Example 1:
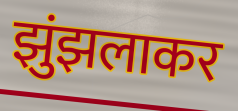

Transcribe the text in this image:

झुंझलाकर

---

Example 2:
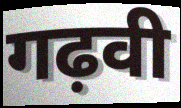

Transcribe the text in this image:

गढ़वी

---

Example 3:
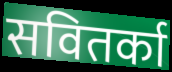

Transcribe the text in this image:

सवितर्का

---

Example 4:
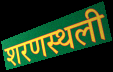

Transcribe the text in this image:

शरणस्थली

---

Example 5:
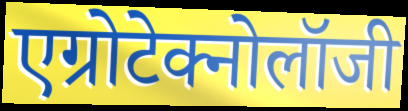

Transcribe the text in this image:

एग्रोटेक्नोलॉजी